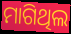
ମାଗିଥିଲ